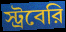
স্ট্রবেরি